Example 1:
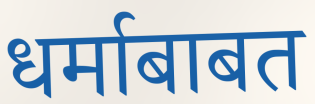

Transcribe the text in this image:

धर्माबाबत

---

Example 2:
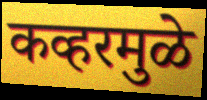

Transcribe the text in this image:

कव्हरमुळे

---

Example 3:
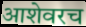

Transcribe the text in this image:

आशेवरच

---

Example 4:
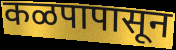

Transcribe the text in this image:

कळपापासून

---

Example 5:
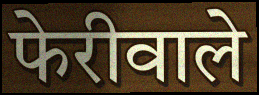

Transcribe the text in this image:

फेरीवाले